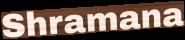
Shramana